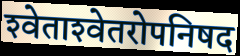
श्वेताश्वेतरोपनिषद